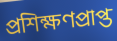
প্ৰশিক্ষণপ্ৰাপ্ত